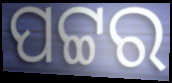
ପଟ୍ଟର